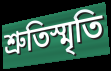
শ্রুতিস্মৃতি